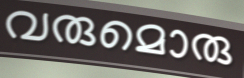
വരുമൊരു